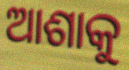
ଆଶାକୁ